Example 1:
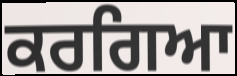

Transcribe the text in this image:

ਕਰਗਿਆ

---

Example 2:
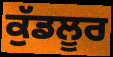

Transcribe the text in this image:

ਕੁੱਡਲੂਰ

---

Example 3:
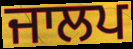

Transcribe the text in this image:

ਜਾਲਪ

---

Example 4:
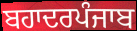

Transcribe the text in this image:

ਬਹਾਦਰਪੰਜਾਬ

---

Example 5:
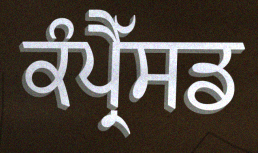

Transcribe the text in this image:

ਕੰਪ੍ਰੈੱਸਡ